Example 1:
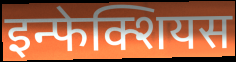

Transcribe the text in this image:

इन्फेक्शियस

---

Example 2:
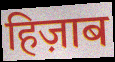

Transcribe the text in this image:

हिज़ाब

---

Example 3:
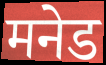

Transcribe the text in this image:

मनेड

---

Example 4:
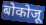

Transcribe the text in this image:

बोकोजू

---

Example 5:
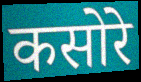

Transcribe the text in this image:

कसोरे